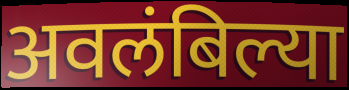
अवलंबिल्या